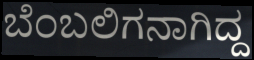
ಬೆಂಬಲಿಗನಾಗಿದ್ದ